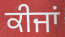
ਕੀਜਾਂ